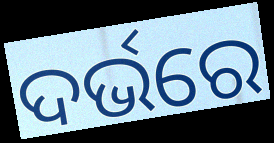
ଦର୍ଭରେ